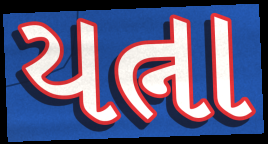
યત્ના